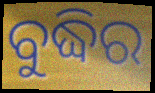
ବୁଦ୍ଧିର